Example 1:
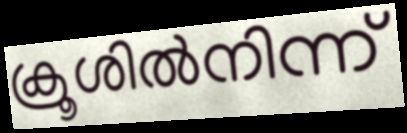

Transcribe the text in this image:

ക്രൂശിൽനിന്ന്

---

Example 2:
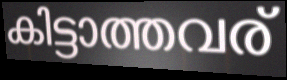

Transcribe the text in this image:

കിട്ടാത്തവര്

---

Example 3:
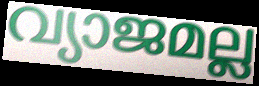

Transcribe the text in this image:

വ്യാജമല്ല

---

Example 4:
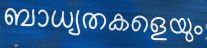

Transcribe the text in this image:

ബാധ്യതകളെയും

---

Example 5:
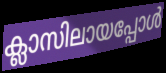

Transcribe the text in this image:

ക്ലാസിലായപ്പോൾ